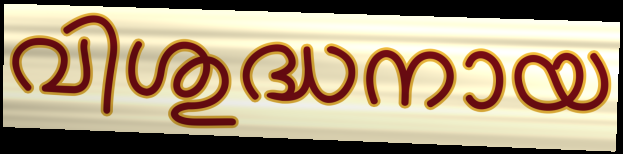
വിശുദ്ധനായ